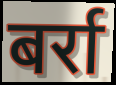
बर्रा